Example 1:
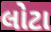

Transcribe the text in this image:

લોટા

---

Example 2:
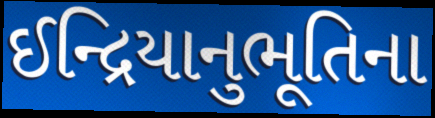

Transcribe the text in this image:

ઈન્દ્રિયાનુભૂતિના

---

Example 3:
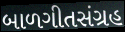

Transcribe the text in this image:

બાળગીતસંગ્રહ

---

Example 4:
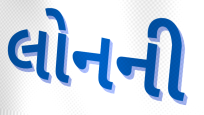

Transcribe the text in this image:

લોનની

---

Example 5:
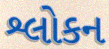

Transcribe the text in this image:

શ્લોકન